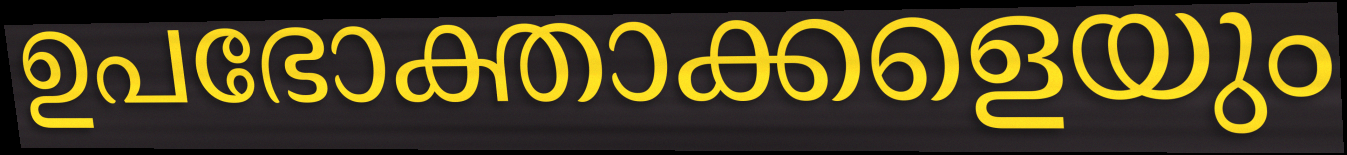
ഉപഭോക്താക്കളെയും